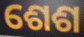
ଶେଶ